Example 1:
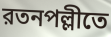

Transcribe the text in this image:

রতনপল্লীতে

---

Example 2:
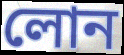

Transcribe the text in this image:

লোন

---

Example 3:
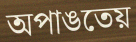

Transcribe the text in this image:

অপাঙতেয়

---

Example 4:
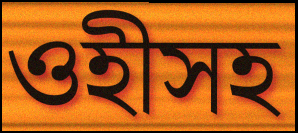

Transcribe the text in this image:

ওহীসহ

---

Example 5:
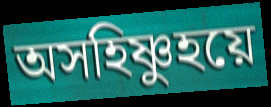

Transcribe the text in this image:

অসহিষ্ণুহয়ে